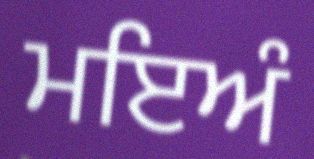
ਮਇਅੰ